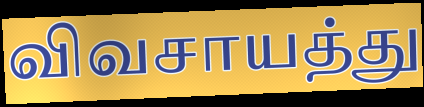
விவசாயத்து